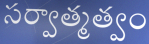
సర్వాత్మత్వం